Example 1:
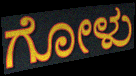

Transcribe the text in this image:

ಗೋಳು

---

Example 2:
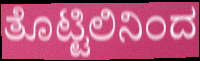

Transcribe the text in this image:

ತೊಟ್ಟಿಲಿನಿಂದ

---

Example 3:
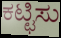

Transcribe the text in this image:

ಕಟ್ಟಿಸು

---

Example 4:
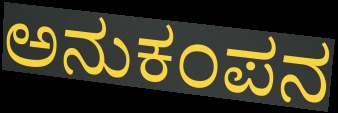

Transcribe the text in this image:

ಅನುಕಂಪನ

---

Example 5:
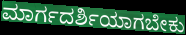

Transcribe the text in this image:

ಮಾರ್ಗದರ್ಶಿಯಾಗಬೇಕು